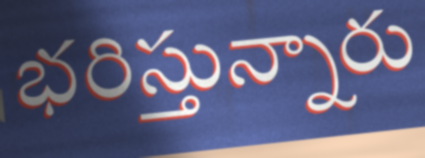
భరిస్తున్నారు